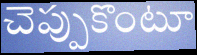
చెప్పుకొంటూ